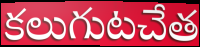
కలుగుటచేత